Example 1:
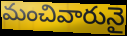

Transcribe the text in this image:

మంచివారునై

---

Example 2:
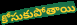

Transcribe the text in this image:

కోసుకుపోతాయి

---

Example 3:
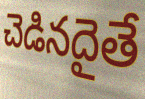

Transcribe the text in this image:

చెడినదైతే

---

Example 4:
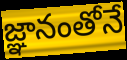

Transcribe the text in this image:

జ్ఞానంతోనే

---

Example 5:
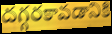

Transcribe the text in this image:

దగ్గరకావడానికి